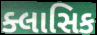
ક્લાસિક